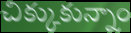
చిక్కుకున్నాం